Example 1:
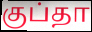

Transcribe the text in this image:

குப்தா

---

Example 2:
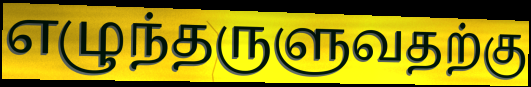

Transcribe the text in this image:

எழுந்தருளுவதற்கு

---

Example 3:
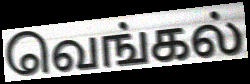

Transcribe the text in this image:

வெங்கல்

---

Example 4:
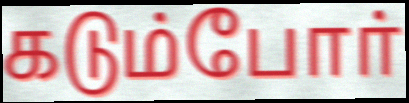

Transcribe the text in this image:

கடும்போர்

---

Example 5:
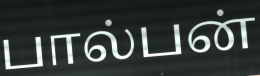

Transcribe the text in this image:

பால்பன்